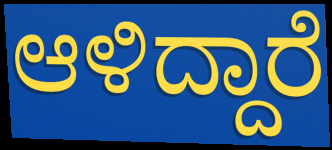
ಆಳಿದ್ದಾರೆ